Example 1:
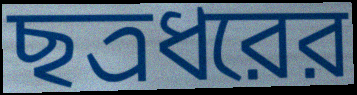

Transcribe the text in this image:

ছত্রধরের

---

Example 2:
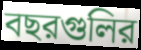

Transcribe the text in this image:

বছরগুলির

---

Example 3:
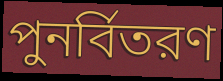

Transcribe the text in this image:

পুনর্বিতরণ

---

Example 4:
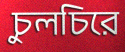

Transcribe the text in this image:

চুলচিরে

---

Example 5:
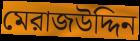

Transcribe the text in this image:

মেরাজউদ্দিন